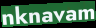
nknavam